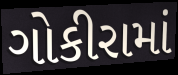
ગોકીરામાં